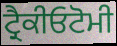
ਟ੍ਰੈਕੀਓਟੋਮੀ